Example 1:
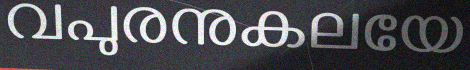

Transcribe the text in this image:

വപുരനുകലയേ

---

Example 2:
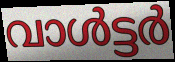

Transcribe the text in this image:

വാൾട്ടർ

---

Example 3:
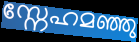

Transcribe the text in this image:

സ്നേഹമഞ്ഞു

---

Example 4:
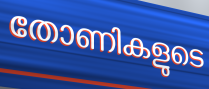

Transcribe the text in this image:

തോണികളുടെ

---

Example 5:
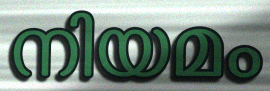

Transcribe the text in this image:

നിയമം